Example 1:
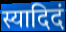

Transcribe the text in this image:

स्यादिदं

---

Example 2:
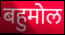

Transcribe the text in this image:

बहुमोल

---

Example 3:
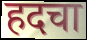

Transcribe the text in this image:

हदचा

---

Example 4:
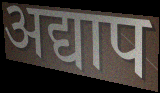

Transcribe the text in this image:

अद्याप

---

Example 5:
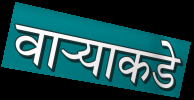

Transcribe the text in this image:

वाऱ्याकडे